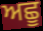
ਅਛੂ